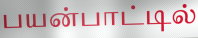
பயன்பாட்டில்